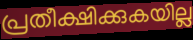
പ്രതീക്ഷിക്കുകയില്ല